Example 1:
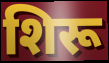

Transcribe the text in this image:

शिरू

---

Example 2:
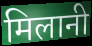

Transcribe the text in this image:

मिलानी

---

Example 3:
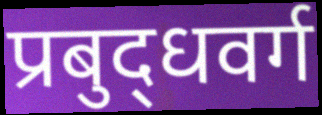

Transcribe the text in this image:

प्रबुद्धवर्ग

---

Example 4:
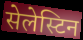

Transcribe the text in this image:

सेलेस्टिन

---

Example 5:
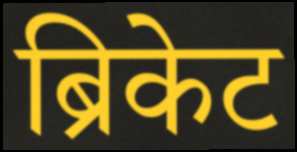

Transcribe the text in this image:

ब्रिकेट